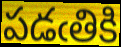
పడఁతికి